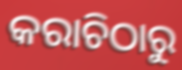
କରାଚିଠାରୁ